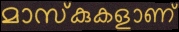
മാസ്കുകളാണ്